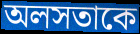
অলসতাকে